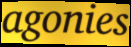
agonies